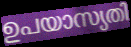
ഉപയാസ്യതി